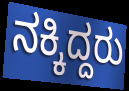
ನಕ್ಕಿದ್ದರು